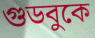
গুডবুকে